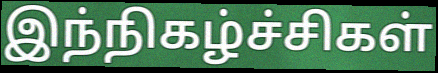
இந்நிகழ்ச்சிகள்